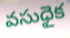
వసుధైక